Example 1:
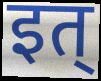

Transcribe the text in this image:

इत्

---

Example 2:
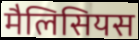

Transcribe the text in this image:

मैलिसियस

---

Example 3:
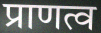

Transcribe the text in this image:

प्राणत्व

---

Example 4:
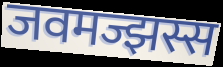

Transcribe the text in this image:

जवमज्झस्स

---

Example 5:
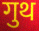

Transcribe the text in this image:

गुथ